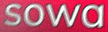
sowa